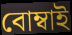
বোম্বাই